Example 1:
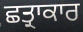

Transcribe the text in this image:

ਛਤ੍ਰਾਕਾਰ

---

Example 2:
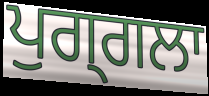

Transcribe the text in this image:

ਪੁਗ੍ਗਲਾ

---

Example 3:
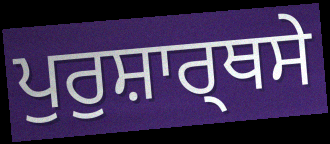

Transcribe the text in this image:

ਪੁਰੁਸ਼ਾਰ੍ਥਸੇ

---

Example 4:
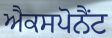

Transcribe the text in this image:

ਐਕਸਪੋਨੈਂਟ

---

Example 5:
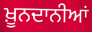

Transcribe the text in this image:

ਖ਼ੂਨਦਾਨੀਆਂ